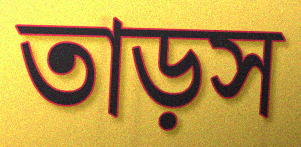
তাড়স